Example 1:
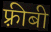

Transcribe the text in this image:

फ़्रीबी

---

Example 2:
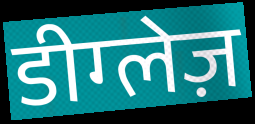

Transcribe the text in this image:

डीग्लेज़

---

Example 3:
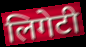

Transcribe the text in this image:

लिगेटी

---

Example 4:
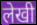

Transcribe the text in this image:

लेखी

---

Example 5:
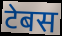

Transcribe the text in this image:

टेबस